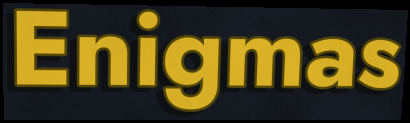
Enigmas